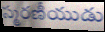
స్మరణీయుడు